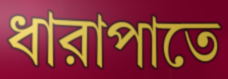
ধারাপাতে